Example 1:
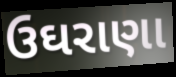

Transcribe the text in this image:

ઉઘરાણા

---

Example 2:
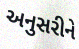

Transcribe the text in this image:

અનુસરીને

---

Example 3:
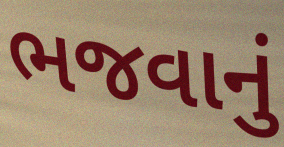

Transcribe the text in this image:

ભજવાનું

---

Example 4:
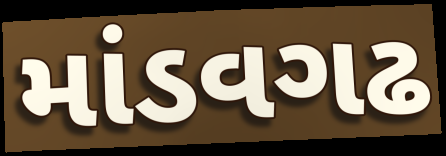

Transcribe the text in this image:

માંડવગઢ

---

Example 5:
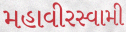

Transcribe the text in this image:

મહાવીરસ્વામી